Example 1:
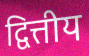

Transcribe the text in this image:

द्वित्तीय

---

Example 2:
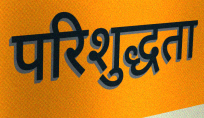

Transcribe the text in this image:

परिशुद्धता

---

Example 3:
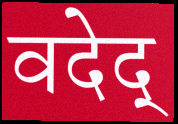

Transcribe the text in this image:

वदेद्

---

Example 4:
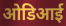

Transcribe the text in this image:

ओडिआई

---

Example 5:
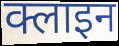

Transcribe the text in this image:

क्लाइन